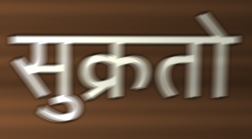
सुक्रतो